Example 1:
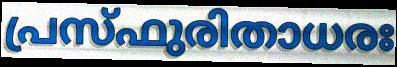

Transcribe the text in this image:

പ്രസ്ഫുരിതാധരഃ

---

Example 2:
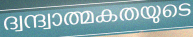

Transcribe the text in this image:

ദ്വന്ദ്വാത്മകതയുടെ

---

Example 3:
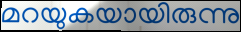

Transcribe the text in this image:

മറയുകയായിരുന്നു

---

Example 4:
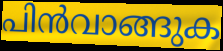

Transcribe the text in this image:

പിൻവാങ്ങുക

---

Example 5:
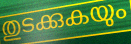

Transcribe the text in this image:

തുടക്കുകയും